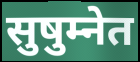
सुषुम्नेत